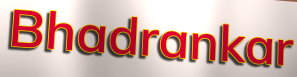
Bhadrankar